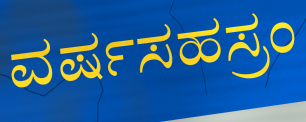
ವರ್ಷಸಹಸ್ರಂ